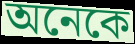
অনেকে